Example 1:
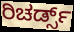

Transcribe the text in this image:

ರಿಚರ್ಡ್ಸ್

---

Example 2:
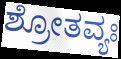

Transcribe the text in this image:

ಶ್ರೋತವ್ಯಃ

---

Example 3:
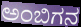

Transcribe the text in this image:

ಅಂಬಿಗನ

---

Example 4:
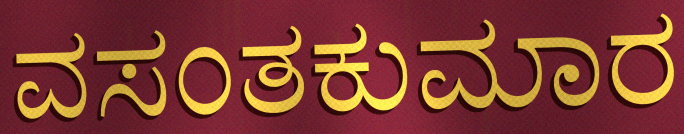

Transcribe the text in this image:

ವಸಂತಕುಮಾರ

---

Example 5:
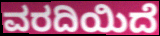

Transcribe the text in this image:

ವರದಿಯಿದೆ